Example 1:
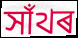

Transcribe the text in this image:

সাঁথৰ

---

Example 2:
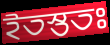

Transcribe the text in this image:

ইতস্ততঃ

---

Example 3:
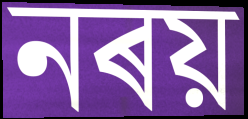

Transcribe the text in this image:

নৰয়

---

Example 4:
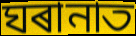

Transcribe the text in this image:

ঘৰানাত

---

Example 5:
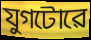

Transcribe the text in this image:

যুগটোৱে